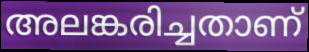
അലങ്കരിച്ചതാണ്